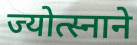
ज्योत्स्नाने